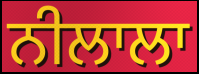
ਨੀਲਾਲਾ